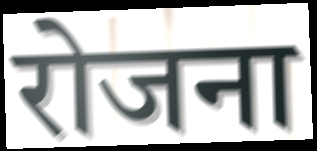
रोजना